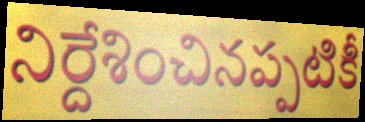
నిర్దేశించినప్పటికీ